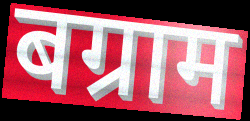
बग्राम